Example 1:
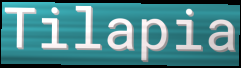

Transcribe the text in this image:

Tilapia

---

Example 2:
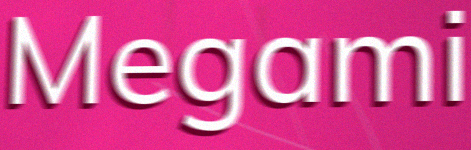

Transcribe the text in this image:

Megami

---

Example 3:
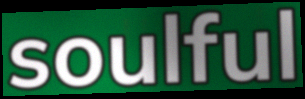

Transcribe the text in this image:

soulful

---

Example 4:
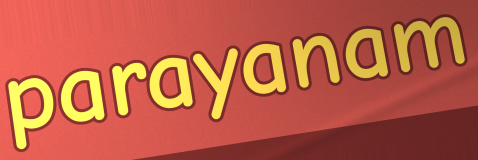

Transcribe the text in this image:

parayanam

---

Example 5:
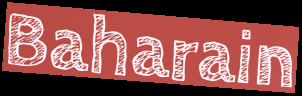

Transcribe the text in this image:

Baharain